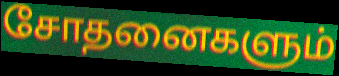
சோதனைகளும்